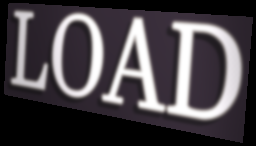
LOAD